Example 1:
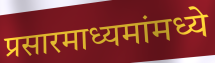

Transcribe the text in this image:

प्रसारमाध्यमांमध्ये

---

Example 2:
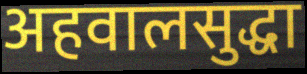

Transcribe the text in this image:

अहवालसुद्धा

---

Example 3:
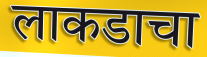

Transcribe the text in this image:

लाकडाचा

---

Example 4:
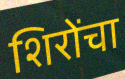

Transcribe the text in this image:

शिरोंचा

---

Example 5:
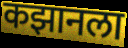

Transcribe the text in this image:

कझानला